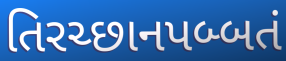
તિરચ્છાનપબ્બતં